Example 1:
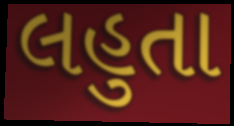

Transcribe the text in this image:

લહુતા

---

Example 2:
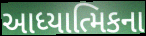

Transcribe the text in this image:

આધ્યાત્મિકના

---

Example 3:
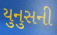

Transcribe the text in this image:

યુનુસની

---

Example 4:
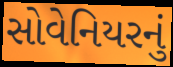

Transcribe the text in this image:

સોવેનિયરનું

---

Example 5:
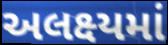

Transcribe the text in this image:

અલક્ષ્યમાં